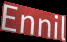
Ennil